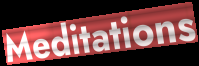
Meditations